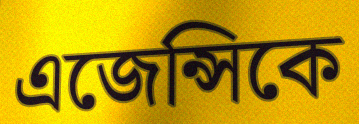
এজেন্সিকে